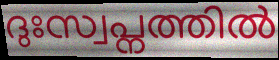
ദുഃസ്വപ്നത്തിൽ